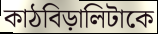
কাঠবিড়ালিটাকে